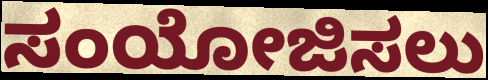
ಸಂಯೋಜಿಸಲು